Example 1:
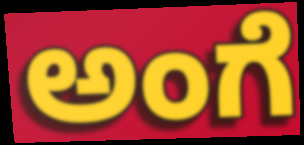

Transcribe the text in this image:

ಅಂಗೆ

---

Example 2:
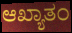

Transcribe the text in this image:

ಆಖ್ಯಾತಂ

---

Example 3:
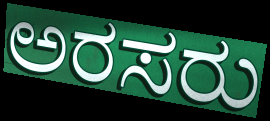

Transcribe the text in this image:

ಅರಸರು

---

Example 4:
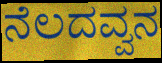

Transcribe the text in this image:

ನೆಲದವ್ವನ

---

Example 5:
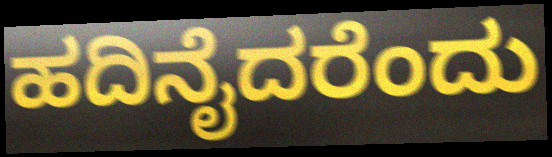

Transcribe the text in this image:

ಹದಿನೈದರೆಂದು